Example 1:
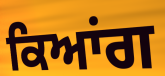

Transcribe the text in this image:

ਕਿਆਂਗ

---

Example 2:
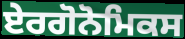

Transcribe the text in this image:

ਏਰਗੋਨੋਮਿਕਸ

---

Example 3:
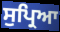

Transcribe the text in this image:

ਸੁਪ੍ਰਿਆ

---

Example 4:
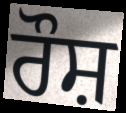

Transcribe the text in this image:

ਰੌਸ਼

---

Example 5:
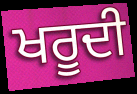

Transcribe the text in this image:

ਖਰੂਦੀ